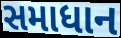
સમાધાન